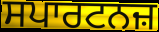
ਸਪਾਰਟਨਜ਼